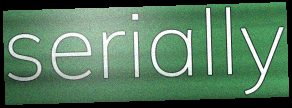
serially